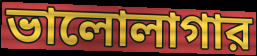
ভালোলাগার